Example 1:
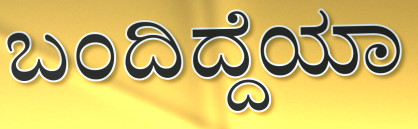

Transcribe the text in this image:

ಬಂದಿದ್ದೆಯಾ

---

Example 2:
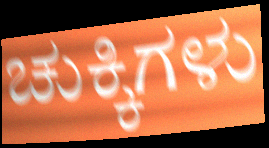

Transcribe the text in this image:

ಚುಕ್ಕಿಗಳು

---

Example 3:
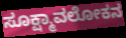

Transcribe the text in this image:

ಸೂಕ್ಷ್ಮಾವಲೋಕನ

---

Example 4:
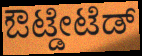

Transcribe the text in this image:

ಔಟ್ಡೇಟೆಡ್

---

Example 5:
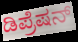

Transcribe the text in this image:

ಡಿಪ್ರೆಷನ್